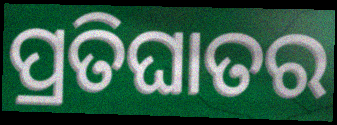
ପ୍ରତିଘାତର